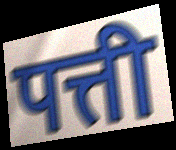
पत्ती